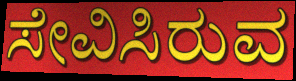
ಸೇವಿಸಿರುವ